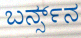
ಬರ್ನ್ಸ್‌ನ